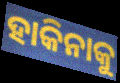
ହାକିନାକୁ